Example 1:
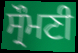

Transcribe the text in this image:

ਸ੍ਰੌਮਣੀ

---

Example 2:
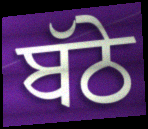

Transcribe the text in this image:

ਬੱਠੇ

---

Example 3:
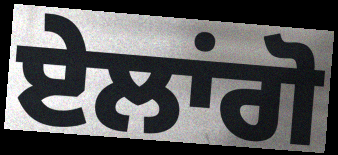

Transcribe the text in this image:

ਏਲਾਂਗੋ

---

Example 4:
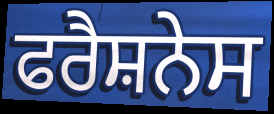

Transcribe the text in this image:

ਫਰੈਸ਼ਨੇਸ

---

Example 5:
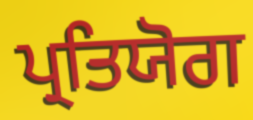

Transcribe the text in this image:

ਪ੍ਰਤਿਯੋਗ